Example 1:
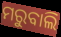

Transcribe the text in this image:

ମରୁବାଲି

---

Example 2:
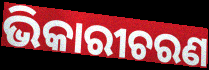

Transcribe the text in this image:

ଭିକାରୀଚରଣ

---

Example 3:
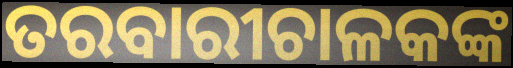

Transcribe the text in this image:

ତରବାରୀଚାଳକଙ୍କ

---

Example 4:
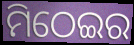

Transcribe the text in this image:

ମିଠେଇର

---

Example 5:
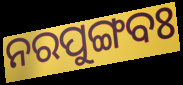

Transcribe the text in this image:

ନରପୁଙ୍ଗବଃ